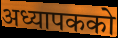
अध्यापकको